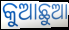
କୁଆଛୁଆ